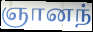
ஞானந்